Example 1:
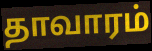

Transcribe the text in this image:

தாவாரம்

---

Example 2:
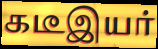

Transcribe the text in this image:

கடீஇயர்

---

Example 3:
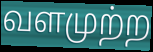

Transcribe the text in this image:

வளமுற்ற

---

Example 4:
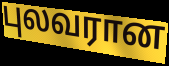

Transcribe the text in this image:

புலவரான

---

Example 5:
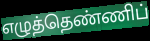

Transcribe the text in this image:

எழுத்தெண்ணிப்